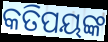
କତିପୟଙ୍କ